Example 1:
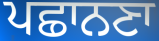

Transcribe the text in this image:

ਪਛਾਨਣਾ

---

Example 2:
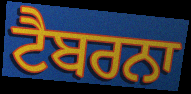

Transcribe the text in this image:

ਟੈਬਰਨਾ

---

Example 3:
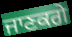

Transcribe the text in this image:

ਜਾਣਕਗੇ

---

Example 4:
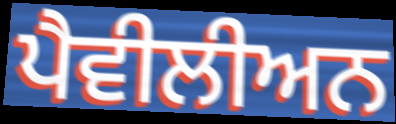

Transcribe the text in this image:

ਪੈਵੀਲੀਅਨ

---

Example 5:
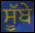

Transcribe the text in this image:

ਸੂੱਬੇ